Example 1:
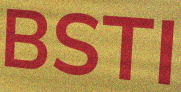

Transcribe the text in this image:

BSTI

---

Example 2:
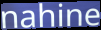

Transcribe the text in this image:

nahine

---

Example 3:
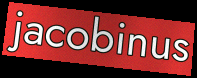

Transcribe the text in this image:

jacobinus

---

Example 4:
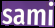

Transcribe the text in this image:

sami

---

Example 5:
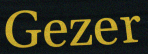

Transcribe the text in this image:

Gezer